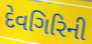
દેવગિરિની